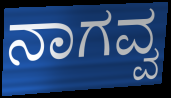
ನಾಗವ್ವ